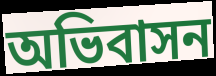
অভিবাসন